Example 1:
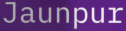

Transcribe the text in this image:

Jaunpur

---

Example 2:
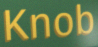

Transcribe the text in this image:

Knob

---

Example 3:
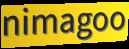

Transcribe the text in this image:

nimagoo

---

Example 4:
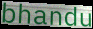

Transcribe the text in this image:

bhandu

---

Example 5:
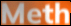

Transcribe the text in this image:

Meth